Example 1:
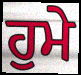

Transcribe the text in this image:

ਹੁਮੇ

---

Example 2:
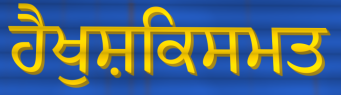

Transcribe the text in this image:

ਹੈਖੁਸ਼ਕਿਸਮਤ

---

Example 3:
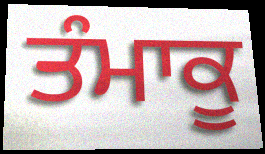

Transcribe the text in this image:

ਤੰਮਾਕੂ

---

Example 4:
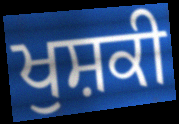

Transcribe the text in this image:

ਖੁਸ਼ਕੀ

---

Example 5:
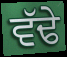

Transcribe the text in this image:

ਵੱਢੇ